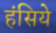
हंसिये